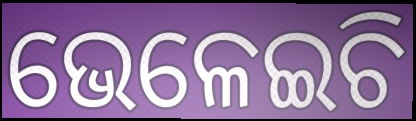
ଭେଳେଇଚି